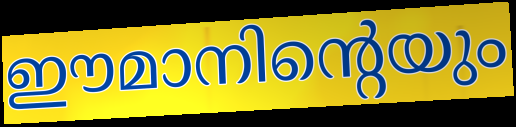
ഈമാനിന്റെയും